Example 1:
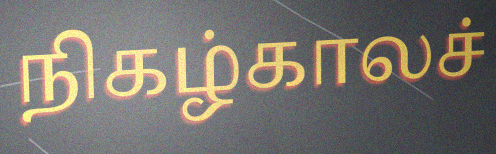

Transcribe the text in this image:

நிகழ்காலச்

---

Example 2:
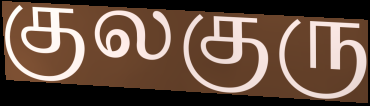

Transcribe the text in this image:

குலகுரு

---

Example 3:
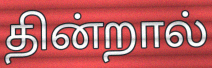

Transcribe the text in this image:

தின்றால்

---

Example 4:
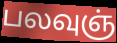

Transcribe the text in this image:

பலவுஞ்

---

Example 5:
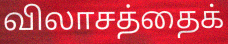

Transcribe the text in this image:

விலாசத்தைக்